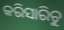
କରିସାରିଚୁ